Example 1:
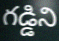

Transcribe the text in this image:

గడ్డిని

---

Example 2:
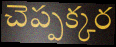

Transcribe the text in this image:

చెప్పక్కర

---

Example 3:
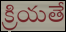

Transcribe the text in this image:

క్రియతే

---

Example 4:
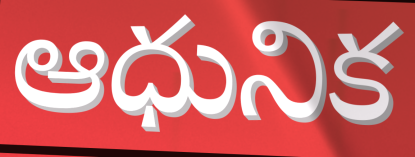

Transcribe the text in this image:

ఆధునిక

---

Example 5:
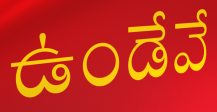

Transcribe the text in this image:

ఉండేవే